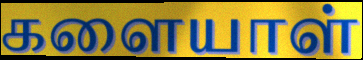
களையாள்